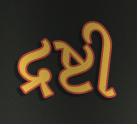
દ્રષ્ટી